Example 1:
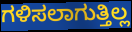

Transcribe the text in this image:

ಗಳಿಸಲಾಗುತ್ತಿಲ್ಲ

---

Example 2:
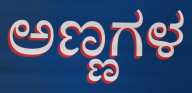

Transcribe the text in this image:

ಅಣ್ಣಗಳ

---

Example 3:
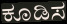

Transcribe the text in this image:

ಕೂಡಿಸ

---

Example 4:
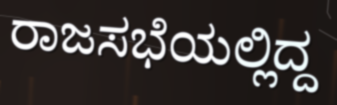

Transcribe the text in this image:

ರಾಜಸಭೆಯಲ್ಲಿದ್ದ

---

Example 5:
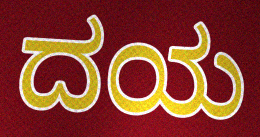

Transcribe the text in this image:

ದಯ